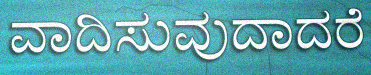
ವಾದಿಸುವುದಾದರೆ